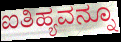
ಐತಿಹ್ಯವನ್ನೂ